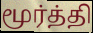
மூர்த்தி